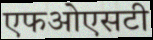
एफओएसटी